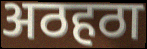
अठहठा